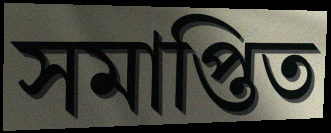
সমাপ্তিত